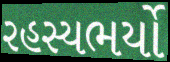
રહસ્યભર્યો